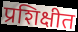
प्रशिक्षीत